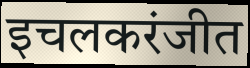
इचलकरंजीत